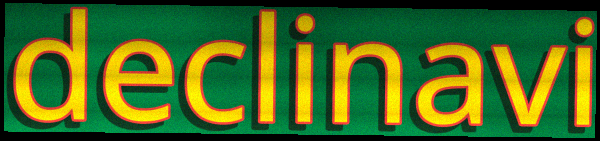
declinavi